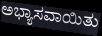
ಅಭ್ಯಾಸವಾಯಿತು